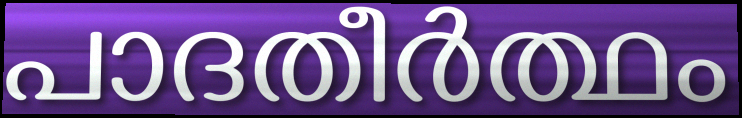
പാദതീർത്ഥം